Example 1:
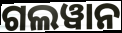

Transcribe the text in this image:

ଗଲୱାନ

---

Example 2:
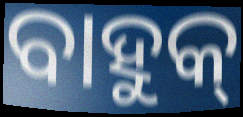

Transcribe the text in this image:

ବାହୁକ୍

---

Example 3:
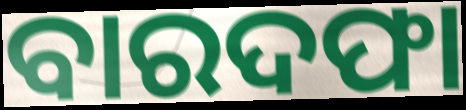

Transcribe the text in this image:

ବାରଦଫା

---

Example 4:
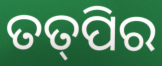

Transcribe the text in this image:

ତତ୍‌ପିର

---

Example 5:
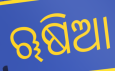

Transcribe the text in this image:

ୠଷିଆ